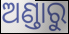
ଅଣ୍ଡାରୁ